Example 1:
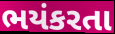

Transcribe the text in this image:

ભયંકરતા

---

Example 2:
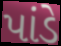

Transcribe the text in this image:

પાંડે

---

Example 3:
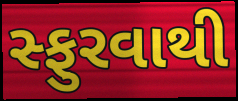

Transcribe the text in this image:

સ્ફુરવાથી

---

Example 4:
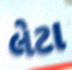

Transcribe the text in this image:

લેટા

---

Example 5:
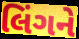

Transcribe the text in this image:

લિંગને